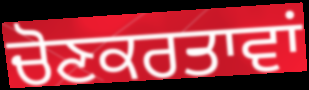
ਚੋਣਕਰਤਾਵਾਂ